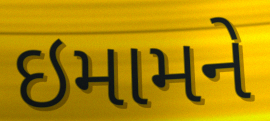
ઇમામને